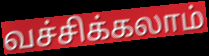
வச்சிக்கலாம்